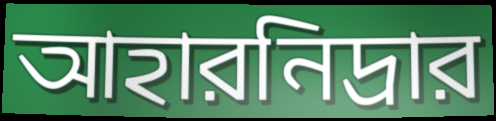
আহারনিদ্রার